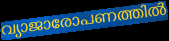
വ്യാജാരോപണത്തിൽ